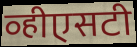
व्हीएसटी